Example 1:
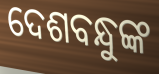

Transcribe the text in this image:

ଦେଶବନ୍ଧୁଙ୍କ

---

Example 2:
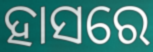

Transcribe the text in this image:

ହାସରେ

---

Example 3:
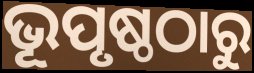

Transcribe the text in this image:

ଭୂପୃଷ୍ଠଠାରୁ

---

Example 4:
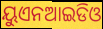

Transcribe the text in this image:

ୟୁଏନଆଇଡିଓ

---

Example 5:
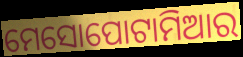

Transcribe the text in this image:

ମେସୋପୋଟାମିଆର